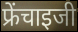
फ्रेंचाइजी